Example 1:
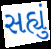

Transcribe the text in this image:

સહ્યું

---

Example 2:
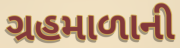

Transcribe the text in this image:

ગ્રહમાળાની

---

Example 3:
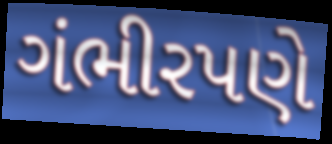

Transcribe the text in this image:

ગંભીરપણે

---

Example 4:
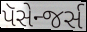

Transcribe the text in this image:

પૅસેન્જર્સ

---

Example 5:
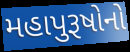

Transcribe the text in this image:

મહાપુરૂષોનો